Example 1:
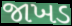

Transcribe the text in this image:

જાખડ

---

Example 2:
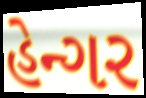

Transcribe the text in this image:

હેન્ગર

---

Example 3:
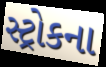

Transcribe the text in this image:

સ્ટ્રોકના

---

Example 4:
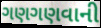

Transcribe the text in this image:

ગણગણવાની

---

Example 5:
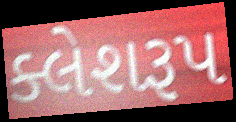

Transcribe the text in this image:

ક્લેશરૂપ